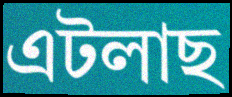
এটলাছ